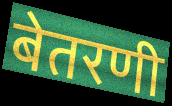
बेतरणी